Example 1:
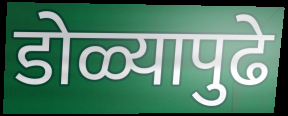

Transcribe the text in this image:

डोळ्यापुढे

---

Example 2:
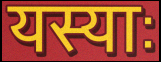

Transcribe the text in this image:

यस्याः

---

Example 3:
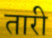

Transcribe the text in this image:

तारी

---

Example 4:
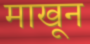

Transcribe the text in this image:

माखून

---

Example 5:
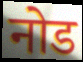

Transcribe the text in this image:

नोड